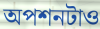
অপশনটাও